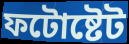
ফটোষ্টেট